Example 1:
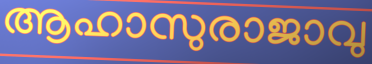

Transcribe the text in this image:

ആഹാസുരാജാവു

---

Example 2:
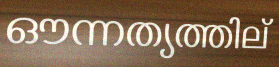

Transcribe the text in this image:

ഔന്നത്യത്തില്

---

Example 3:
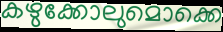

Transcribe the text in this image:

കഴുക്കോലുമൊക്കെ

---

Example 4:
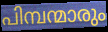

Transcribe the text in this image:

പിമ്പന്മാരും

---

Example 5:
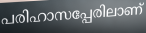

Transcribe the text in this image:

പരിഹാസപ്പേരിലാണ്